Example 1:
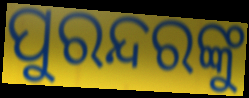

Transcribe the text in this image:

ପୁରନ୍ଦରଙ୍କୁ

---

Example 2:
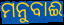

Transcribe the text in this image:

ମନୁବାଈ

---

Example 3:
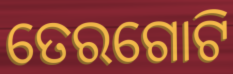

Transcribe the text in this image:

ତେରଗୋଟି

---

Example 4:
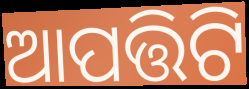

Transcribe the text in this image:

ଆପତ୍ତିଟି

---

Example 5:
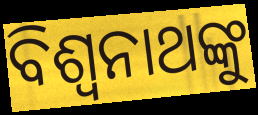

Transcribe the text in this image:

ବିଶ୍ବନାଥଙ୍କୁ